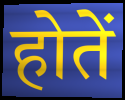
होतें